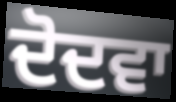
ਦੋਦਵਾ